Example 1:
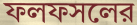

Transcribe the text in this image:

ফলফসলের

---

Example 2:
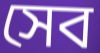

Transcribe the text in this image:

সেব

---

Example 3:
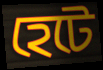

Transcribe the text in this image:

হেটে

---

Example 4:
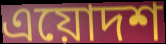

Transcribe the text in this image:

এয়োদশ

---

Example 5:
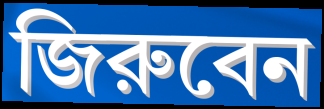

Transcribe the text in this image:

জিরুবেন